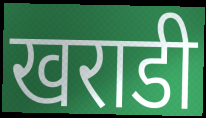
खराडी